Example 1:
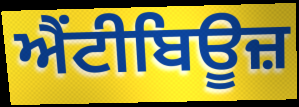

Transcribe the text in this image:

ਐਂਟੀਬਿਊਜ਼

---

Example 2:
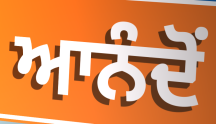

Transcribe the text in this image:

ਆਨੰਦੋਂ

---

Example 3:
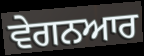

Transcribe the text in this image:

ਵੇਗਨਆਰ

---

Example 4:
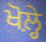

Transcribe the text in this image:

ਖੋਲ਼੍ਹੇ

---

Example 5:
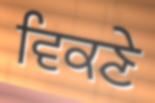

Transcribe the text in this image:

ਵਿਕਣੇ